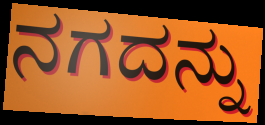
ನಗದನ್ನು